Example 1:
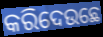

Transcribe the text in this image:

କରିଦେଉଛେ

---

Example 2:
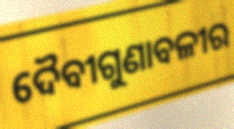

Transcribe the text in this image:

ଦୈବୀଗୁଣାବଳୀର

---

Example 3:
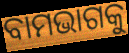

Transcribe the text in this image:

ବାମଭାଗକୁ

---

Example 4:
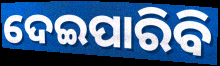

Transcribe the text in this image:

ଦେଇପାରିବି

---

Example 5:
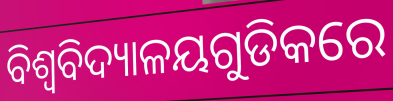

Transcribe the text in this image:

ବିଶ୍ୱବିଦ୍ୟାଳୟଗୁଡିକରେ